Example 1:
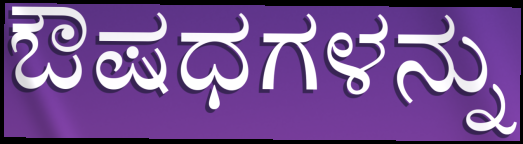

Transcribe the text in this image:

ಔಷಧಗಳನ್ನು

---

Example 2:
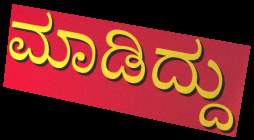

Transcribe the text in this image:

ಮಾಡಿದ್ದು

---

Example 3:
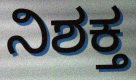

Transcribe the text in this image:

ನಿಶಕ್ತ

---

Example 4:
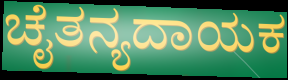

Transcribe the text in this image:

ಚೈತನ್ಯದಾಯಕ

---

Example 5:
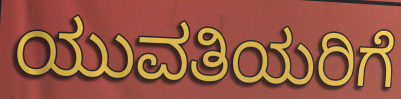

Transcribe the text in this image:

ಯುವತಿಯರಿಗೆ